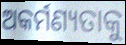
ଅକର୍ମଣ୍ୟତାକୁ